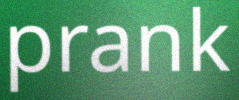
prank